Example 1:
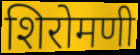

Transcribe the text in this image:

शिरोमणी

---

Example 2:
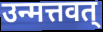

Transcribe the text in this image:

उन्मत्तवत्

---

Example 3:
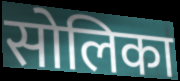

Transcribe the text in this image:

सोलिका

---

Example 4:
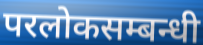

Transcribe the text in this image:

परलोकसम्बन्धी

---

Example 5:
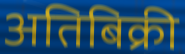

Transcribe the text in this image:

अतिबिक्री